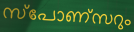
സ്പോണ്സറും